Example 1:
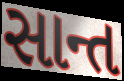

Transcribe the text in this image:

સાન્ત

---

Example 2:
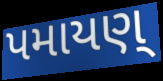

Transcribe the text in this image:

પમાયણ્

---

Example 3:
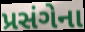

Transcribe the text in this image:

પ્રસંગેના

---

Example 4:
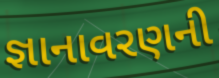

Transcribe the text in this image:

જ્ઞાનાવરણની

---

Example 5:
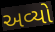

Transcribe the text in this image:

અવ્યો